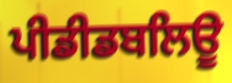
ਪੀਡੀਡਬਲਿਊ